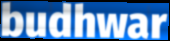
budhwar